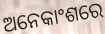
ଅନେକାଂଶରେ